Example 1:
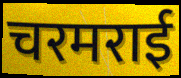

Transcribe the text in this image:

चरमराई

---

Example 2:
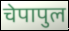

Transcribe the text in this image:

चेपापुल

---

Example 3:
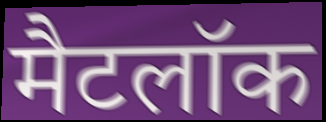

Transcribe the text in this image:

मैटलॉक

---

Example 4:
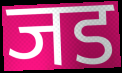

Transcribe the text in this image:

जड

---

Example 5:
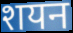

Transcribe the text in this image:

शयन